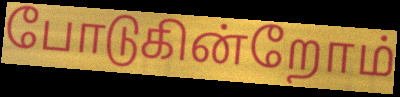
போடுகின்றோம்